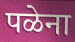
पळेना